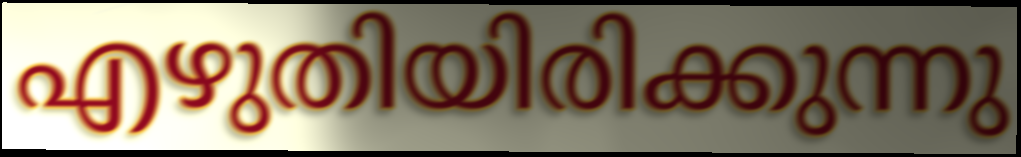
എഴുതിയിരിക്കുന്നു